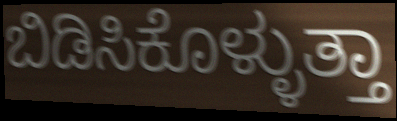
ಬಿಡಿಸಿಕೊಳ್ಳುತ್ತಾ